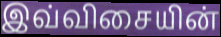
இவ்விசையின்